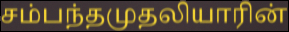
சம்பந்தமுதலியாரின்